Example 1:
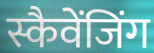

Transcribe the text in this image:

स्कैवेंजिंग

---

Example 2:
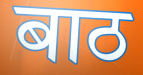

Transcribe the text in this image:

बाठ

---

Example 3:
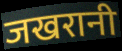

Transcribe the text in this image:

जखरानी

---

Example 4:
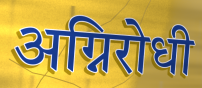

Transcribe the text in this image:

अग्निरोधी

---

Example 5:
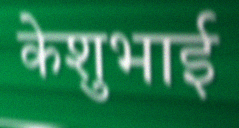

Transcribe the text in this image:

केशुभाई